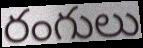
రంగులు